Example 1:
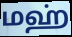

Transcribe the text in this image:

மஹ்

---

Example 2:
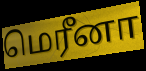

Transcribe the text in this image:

மெரீனா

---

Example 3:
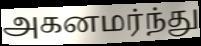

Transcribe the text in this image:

அகனமர்ந்து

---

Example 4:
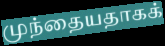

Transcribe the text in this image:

முந்தையதாகக்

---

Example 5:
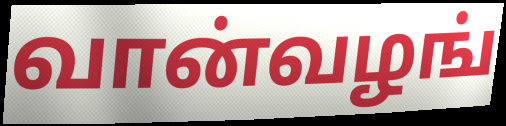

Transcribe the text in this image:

வான்வழங்